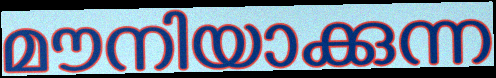
മൗനിയാക്കുന്ന